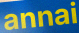
annai